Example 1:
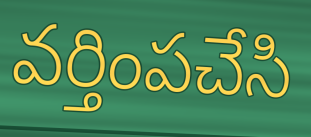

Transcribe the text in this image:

వర్తింపచేసి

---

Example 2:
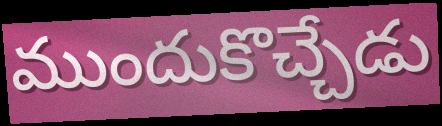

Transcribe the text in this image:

ముందుకొచ్చేడు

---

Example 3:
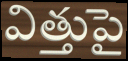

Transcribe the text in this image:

విత్తుపై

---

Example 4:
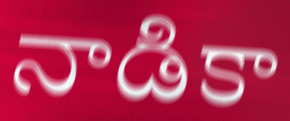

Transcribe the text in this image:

నాడికా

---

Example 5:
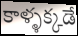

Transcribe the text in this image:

కాళ్ళక్కడే